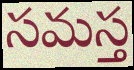
సమస్త